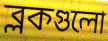
ব্লকগুলো